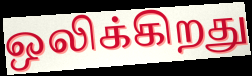
ஒலிக்கிறது